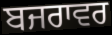
ਬਜਰਾਵਰ